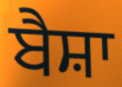
ਬੈਸ਼ਾ